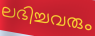
ലഭിച്ചവരും